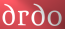
drdo